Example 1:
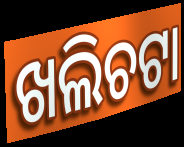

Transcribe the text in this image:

ଖଲିଚଟା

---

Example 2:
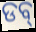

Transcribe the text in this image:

ଡବ୍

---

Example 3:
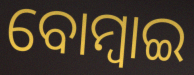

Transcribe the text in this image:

ବୋମ୍ୱାଇ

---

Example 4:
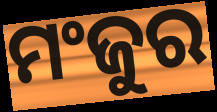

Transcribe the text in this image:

ମଂଜୁର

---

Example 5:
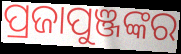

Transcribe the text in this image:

ପ୍ରଜାପୁଞ୍ଜଙ୍କର